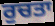
ਰੁਚਤਾ